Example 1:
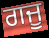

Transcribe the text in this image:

ਗਜੂ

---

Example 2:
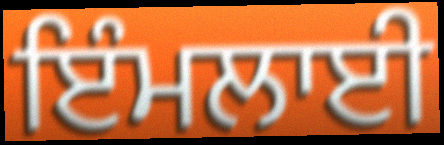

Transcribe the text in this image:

ਇੰਮਲਾਈ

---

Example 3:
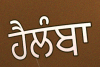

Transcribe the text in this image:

ਹੈਲੰਬਾ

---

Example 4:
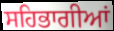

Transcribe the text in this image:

ਸਹਿਭਾਗੀਆਂ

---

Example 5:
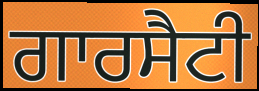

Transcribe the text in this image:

ਗਾਰਸੈਟੀ